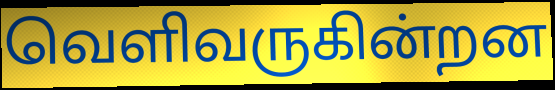
வெளிவருகின்றன